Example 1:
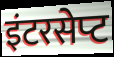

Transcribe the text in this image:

इंटरसेप्‍ट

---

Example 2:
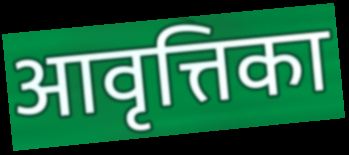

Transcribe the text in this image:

आवृत्तिका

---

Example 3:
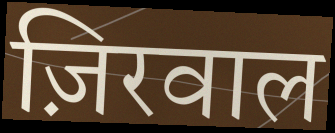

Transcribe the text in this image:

ज़िरवाल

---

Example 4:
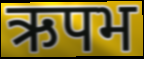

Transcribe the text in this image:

ऋपभ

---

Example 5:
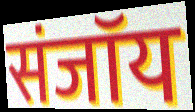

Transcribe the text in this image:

संजॉय